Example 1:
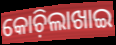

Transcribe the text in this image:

କୋଚ଼ିଲାଖାଇ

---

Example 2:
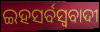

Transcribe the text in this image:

ଇହସର୍ବସ୍ୱବାଦୀ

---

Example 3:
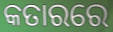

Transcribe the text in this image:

କତାରରେ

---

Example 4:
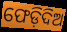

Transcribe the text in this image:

ଫେଡ଼ିଦିଅ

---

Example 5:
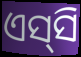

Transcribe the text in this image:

ଏସ୍‍ସି